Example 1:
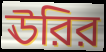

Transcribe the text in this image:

ঊরির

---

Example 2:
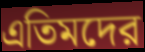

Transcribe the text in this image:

এতিমদের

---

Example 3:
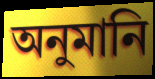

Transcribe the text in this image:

অনুমানি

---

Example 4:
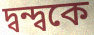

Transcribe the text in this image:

দ্বন্দ্বকে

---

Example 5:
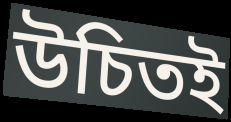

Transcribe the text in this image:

উচিতই